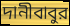
দানীবাবুর